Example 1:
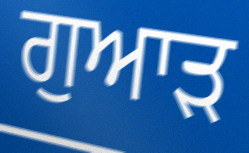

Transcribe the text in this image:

ਗੁਆੜ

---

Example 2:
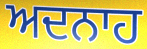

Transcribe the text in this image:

ਅਦਨਾਹ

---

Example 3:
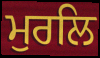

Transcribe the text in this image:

ਮੁਰਲਿ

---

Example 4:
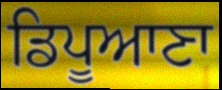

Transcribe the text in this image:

ਡਿਪੂਆਣਾ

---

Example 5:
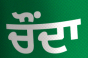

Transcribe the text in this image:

ਚੌਂਦਾ